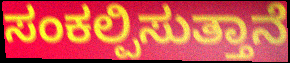
ಸಂಕಲ್ಪಿಸುತ್ತಾನೆ